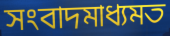
সংবাদমাধ্যমত